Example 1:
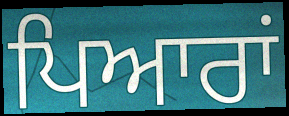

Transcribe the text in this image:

ਪਿਆਰਾਂ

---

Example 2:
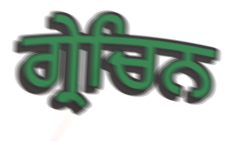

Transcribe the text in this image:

ਗ੍ਰੇਚਿਨ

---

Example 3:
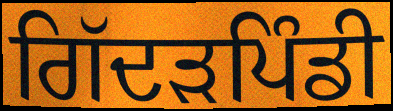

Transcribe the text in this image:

ਗਿੱਦੜਪਿੰਡੀ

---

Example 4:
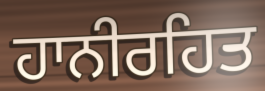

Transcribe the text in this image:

ਹਾਨੀਰਹਿਤ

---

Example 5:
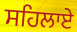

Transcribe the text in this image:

ਸਹਿਲਾਏ